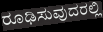
ರೂಢಿಸುವುದರಲ್ಲಿ